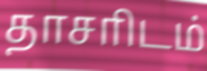
தாசரிடம்